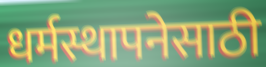
धर्मस्थापनेसाठी